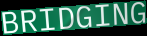
BRIDGING